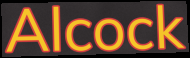
Alcock